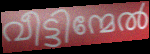
വീട്ടിന്മേൽ